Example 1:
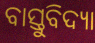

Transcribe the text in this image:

ବାସ୍ତୁବିଦ୍ୟା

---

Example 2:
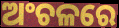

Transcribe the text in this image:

ଅଂଚଳରେ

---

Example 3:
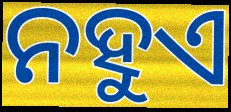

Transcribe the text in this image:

ନହୁଏ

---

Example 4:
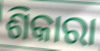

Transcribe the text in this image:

ଶିକାରା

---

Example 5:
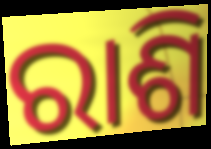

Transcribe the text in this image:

ରାଶି